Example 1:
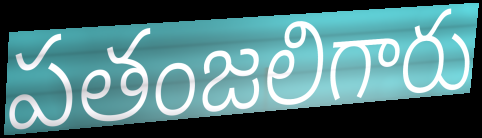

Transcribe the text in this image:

పతంజలిగారు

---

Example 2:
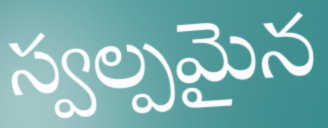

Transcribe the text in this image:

స్వల్పమైన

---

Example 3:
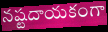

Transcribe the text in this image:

నష్టదాయకంగా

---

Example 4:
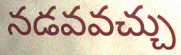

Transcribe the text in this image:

నడవవచ్చు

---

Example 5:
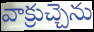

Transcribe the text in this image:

వాక్రుచ్చెను